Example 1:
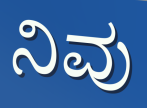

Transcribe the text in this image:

ನಿವು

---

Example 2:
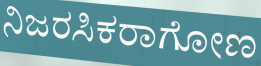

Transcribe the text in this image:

ನಿಜರಸಿಕರಾಗೋಣ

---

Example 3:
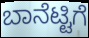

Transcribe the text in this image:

ಬಾನೆಟ್ಟಿಗೆ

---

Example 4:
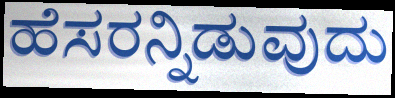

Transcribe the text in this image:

ಹೆಸರನ್ನಿಡುವುದು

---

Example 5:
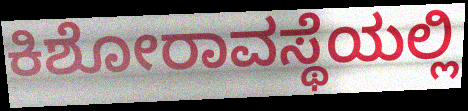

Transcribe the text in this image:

ಕಿಶೋರಾವಸ್ಥೆಯಲ್ಲಿ